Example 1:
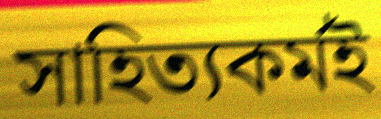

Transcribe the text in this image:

সাহিত্যকর্মই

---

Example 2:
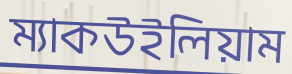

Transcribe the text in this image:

ম্যাকউইলিয়াম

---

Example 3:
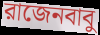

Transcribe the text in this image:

রাজেনবাবু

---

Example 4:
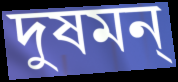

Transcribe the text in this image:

দুষমন্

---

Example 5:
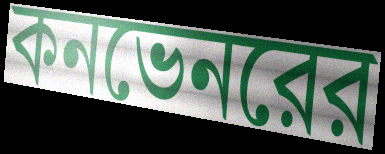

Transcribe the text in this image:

কনভেনরের